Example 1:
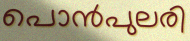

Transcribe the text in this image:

പൊൻപുലരി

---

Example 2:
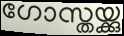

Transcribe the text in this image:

ഗോസ്തയ്ക്കു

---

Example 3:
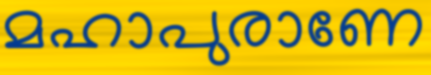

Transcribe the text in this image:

മഹാപുരാണേ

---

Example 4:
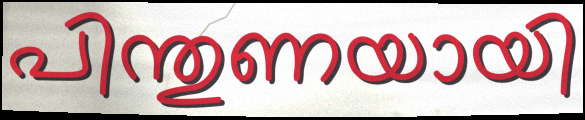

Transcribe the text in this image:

പിന്തുണയായി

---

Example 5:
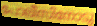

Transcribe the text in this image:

പോലീസിനോടു